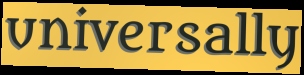
universally